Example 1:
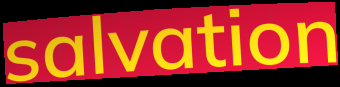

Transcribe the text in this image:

salvation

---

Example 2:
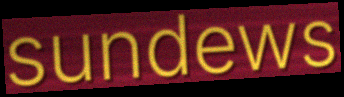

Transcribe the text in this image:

sundews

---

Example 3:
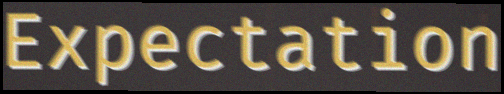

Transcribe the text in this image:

Expectation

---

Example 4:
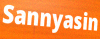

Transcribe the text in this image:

Sannyasin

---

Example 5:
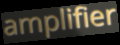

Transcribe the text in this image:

amplifier